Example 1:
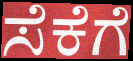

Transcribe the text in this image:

ಸೆಕೆಗೆ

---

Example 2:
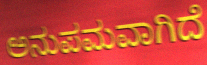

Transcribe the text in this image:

ಅನುಪಮವಾಗಿದೆ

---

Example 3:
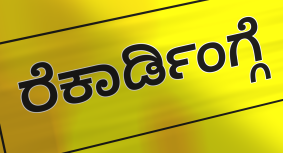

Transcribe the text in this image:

ರೆಕಾರ್ಡಿಂಗ್ಗೆ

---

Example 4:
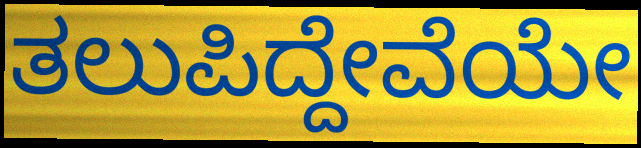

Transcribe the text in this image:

ತಲುಪಿದ್ದೇವೆಯೇ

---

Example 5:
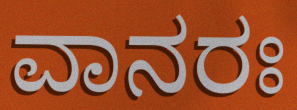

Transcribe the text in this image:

ವಾನರಃ